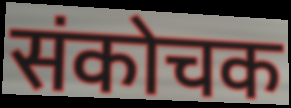
संकोचक